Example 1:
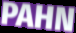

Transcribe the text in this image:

PAHN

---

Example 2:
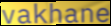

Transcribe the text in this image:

vakhane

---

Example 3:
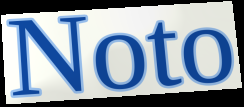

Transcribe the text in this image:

Noto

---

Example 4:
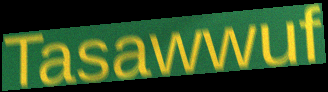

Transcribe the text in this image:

Tasawwuf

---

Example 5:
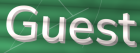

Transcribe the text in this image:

Guest